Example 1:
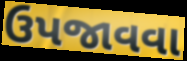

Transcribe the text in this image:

ઉપજાવવા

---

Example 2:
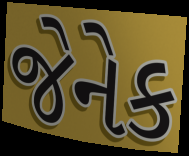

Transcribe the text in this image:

જેનેક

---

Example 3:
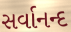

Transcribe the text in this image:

સર્વાનન્દ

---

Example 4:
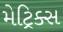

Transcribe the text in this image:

મેટ્રિક્સ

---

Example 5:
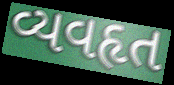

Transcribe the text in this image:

વ્યવહૃત